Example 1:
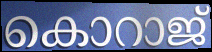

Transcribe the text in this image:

കൊറാജ്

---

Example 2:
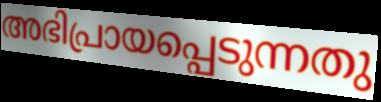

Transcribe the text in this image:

അഭിപ്രായപ്പെടുന്നതു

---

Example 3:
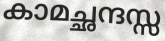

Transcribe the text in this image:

കാമച്ഛന്ദസ്സ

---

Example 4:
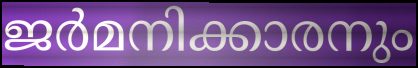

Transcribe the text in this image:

ജർമനിക്കാരനും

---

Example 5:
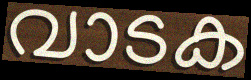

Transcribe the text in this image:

വാടക